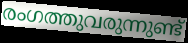
രംഗത്തുവരുന്നുണ്ട്